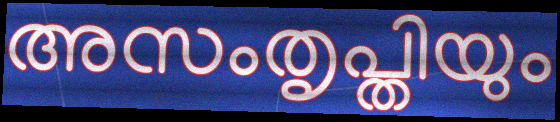
അസംതൃപ്തിയും